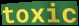
toxic